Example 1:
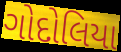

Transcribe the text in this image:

ગોદોલિયા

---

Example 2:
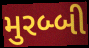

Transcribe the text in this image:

મુરબ્બી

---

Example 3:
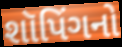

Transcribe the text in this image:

શૉપિંગનો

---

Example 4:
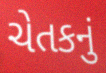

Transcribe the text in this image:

ચેતકનું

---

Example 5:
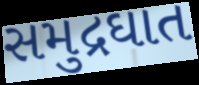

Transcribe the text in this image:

સમુદ્રઘાત